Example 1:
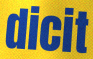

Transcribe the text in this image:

dicit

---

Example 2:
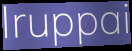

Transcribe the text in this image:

Iruppai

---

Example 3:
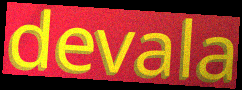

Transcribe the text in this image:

devala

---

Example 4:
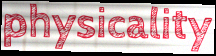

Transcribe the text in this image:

physicality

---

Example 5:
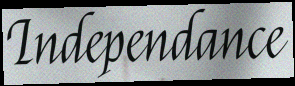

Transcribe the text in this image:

Independance